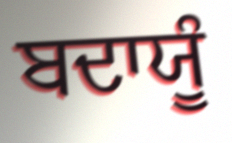
ਬਦਾਯੂੰ